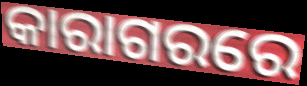
କାରାଗରରେ